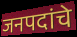
जनपदांचे